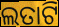
ଲତାଟି